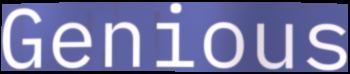
Genious